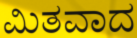
ಮಿತವಾದ